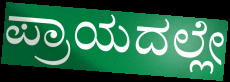
ಪ್ರಾಯದಲ್ಲೇ